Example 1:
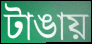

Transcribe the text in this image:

টাঙায়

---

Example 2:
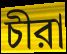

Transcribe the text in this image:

চীরা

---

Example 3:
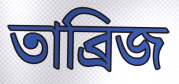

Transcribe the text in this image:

তাব্রিজ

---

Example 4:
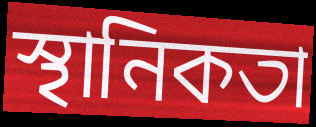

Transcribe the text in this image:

স্থানিকতা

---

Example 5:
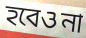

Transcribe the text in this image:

হবেওনা